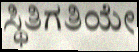
ಸ್ಥಿತಿಗತಿಯೇ